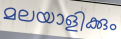
മലയാളിക്കും